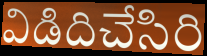
విడిదిచేసిరి